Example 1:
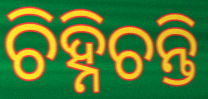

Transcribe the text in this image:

ଚିହ୍ନିଚନ୍ତି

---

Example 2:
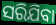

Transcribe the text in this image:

ସରିଯିବା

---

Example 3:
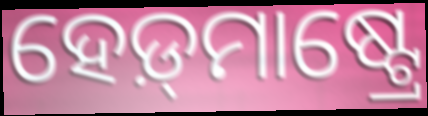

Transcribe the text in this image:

ହେଡ଼୍‍ମାଷ୍ଟ୍ରେ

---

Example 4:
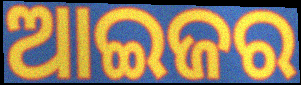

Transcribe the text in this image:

ଆଇଜର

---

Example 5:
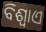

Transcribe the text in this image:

ବିଶ୍ୱାଏ